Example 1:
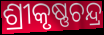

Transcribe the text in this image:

ଶ୍ରୀକୃଷ୍ଣଚନ୍ଦ୍ର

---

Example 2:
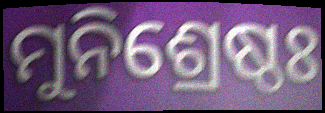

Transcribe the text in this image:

ମୁନିଶ୍ରେଷ୍ଠଃ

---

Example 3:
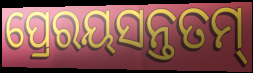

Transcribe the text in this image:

ପ୍ରେରୟସନ୍ତତମ୍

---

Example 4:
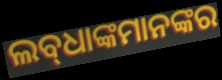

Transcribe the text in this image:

ଲବ୍‌ଧାଙ୍କମାନଙ୍କର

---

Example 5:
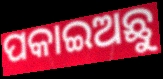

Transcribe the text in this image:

ପକାଇଅଛୁ